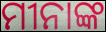
ମୀନାଙ୍କ